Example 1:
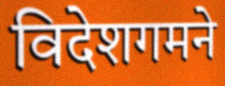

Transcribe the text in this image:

विदेशगमने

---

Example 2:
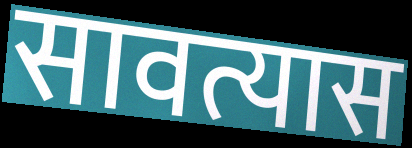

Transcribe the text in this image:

सावत्यास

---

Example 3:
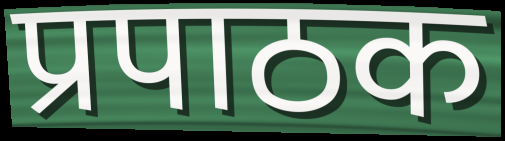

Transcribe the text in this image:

प्रपाठक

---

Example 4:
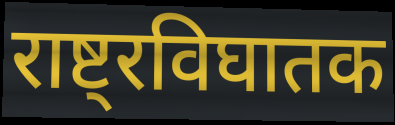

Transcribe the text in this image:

राष्ट्रविघातक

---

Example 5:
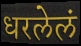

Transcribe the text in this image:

धरलेलं